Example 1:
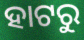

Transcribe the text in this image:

ହାଟରୁ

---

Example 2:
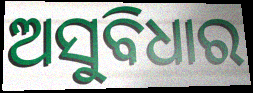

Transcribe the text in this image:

ଅସୁବିଧାର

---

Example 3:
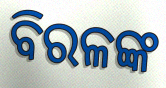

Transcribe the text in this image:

ବିରଳଙ୍କ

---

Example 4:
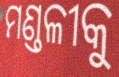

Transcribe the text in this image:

ମଣ୍ଡଳୀକୁ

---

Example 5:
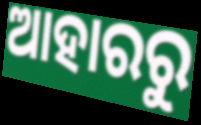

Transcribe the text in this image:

ଆହାରରୁ